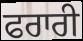
ਫਰਾਰੀ